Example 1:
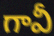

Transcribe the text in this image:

గావీ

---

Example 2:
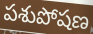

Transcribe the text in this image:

పశుపోషణ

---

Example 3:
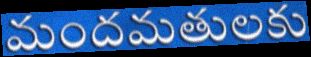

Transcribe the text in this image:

మందమతులకు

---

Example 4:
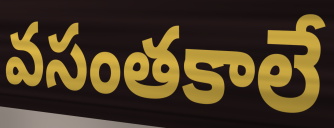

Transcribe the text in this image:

వసంతకాలే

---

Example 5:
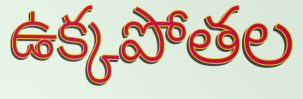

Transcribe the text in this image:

ఉక్కపోతల